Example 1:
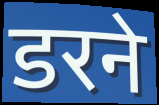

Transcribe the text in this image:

डरने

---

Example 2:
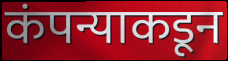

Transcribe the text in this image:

कंपन्याकडून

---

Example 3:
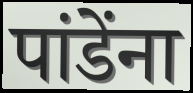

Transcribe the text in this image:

पांडेंना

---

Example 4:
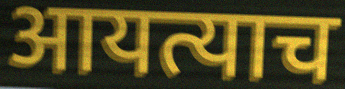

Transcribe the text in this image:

आयत्याच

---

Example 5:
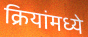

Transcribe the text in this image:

क्रियांमध्ये